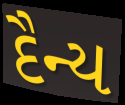
દૈન્ય